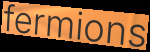
fermions